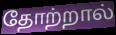
தோற்றால்